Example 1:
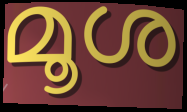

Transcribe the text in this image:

മൂശ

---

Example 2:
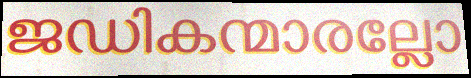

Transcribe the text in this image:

ജഡികന്മാരല്ലോ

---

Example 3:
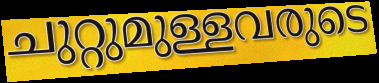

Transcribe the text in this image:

ചുറ്റുമുള്ളവരുടെ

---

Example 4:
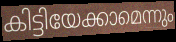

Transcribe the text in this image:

കിട്ടിയേക്കാമെന്നും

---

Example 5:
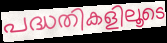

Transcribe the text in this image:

പദ്ധതികളിലൂടെ